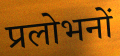
प्रलोभनों